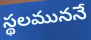
స్థలముననే